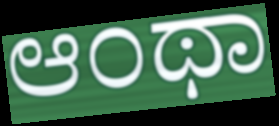
ಆಂಥಾ